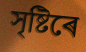
সৃষ্টিৰে